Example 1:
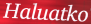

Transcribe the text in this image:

Haluatko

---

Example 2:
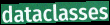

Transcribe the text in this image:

dataclasses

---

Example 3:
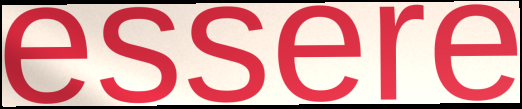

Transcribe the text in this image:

essere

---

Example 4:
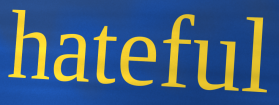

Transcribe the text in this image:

hateful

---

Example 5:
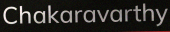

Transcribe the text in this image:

Chakaravarthy